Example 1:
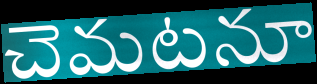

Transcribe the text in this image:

చెమటనూ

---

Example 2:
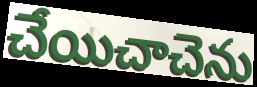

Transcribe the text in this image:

చేయిచాచెను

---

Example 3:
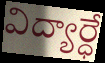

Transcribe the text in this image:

విద్యార్ధే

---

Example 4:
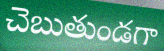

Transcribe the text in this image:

చెబుతుండగా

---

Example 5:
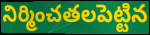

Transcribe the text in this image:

నిర్మించతలపెట్టిన